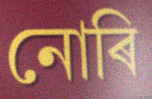
নোৰি